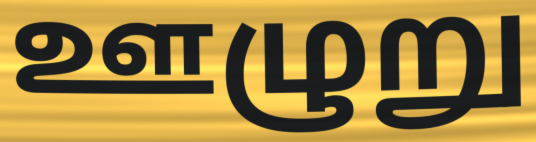
ஊழுறு